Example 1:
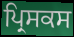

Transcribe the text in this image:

ਪ੍ਰਿਸਕਸ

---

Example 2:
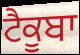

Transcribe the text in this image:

ਟੈਕੂਬਾ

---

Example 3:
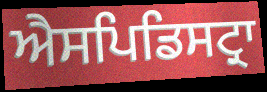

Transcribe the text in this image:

ਐਸਪਿਡਿਸਟ੍ਰਾ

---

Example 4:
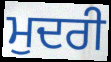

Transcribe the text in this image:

ਮੁਦਰੀ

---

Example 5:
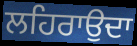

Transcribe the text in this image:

ਲਹਿਰਾਉਦਾ